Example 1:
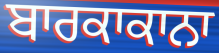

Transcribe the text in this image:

ਬਾਰਕਾਕਾਨਾ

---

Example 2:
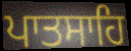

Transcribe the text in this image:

ਪਾਤਸਾਹਿ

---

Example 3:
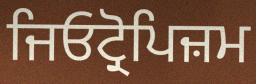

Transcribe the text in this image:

ਜਿਓਟ੍ਰੋਪਿਜ਼ਮ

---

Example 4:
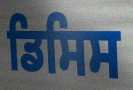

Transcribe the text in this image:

ਡਿਸਿਸ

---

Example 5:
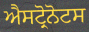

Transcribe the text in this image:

ਐਸਟ੍ਰੋਨੋਟਸ